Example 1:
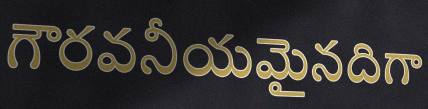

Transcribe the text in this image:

గౌరవనీయమైనదిగా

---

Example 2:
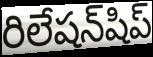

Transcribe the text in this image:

రిలేషన్‌షిప్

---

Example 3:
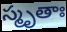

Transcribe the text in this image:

స్మృతాః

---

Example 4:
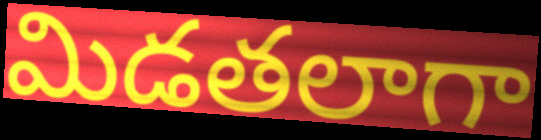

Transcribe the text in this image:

మిడతలాగా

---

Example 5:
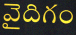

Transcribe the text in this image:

వైదిగం